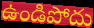
ఉండిపోదు